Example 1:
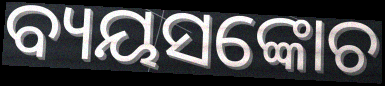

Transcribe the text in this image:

ବ୍ୟୟସଙ୍କୋଚ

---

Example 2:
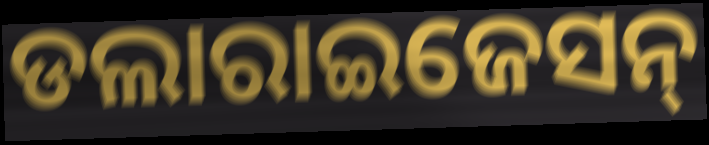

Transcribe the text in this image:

ଡଲାରାଇଜେସନ୍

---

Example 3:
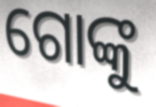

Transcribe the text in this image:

ଗୋଙ୍କୁ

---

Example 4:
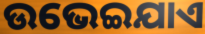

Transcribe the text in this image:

ଉଭେଇଯାଏ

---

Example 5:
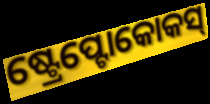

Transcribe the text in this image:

ଷ୍ଟ୍ରେପ୍ଟୋକୋକସ୍